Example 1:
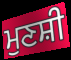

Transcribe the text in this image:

ਮੁਣਸ਼ੀ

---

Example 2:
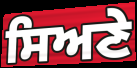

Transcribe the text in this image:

ਸਿਅਣੇ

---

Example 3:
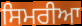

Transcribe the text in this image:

ਸਿਮਰੀਆ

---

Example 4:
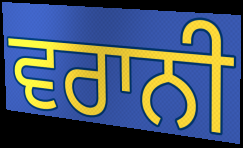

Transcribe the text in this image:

ਵਰਾਨੀ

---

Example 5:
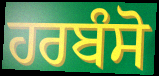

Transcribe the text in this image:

ਹਰਬੰਸੋ